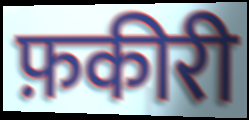
फ़कीरी